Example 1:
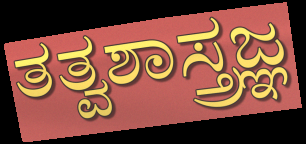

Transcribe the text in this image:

ತತ್ವಶಾಸ್ತ್ರಜ್ಞ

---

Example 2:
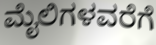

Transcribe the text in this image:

ಮೈಲಿಗಳವರೆಗೆ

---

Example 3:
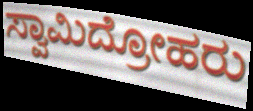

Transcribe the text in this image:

ಸ್ವಾಮಿದ್ರೋಹರು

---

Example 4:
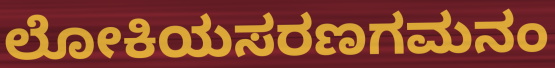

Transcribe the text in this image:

ಲೋಕಿಯಸರಣಗಮನಂ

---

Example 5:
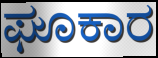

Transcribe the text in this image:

ಘೂಕಾರ